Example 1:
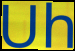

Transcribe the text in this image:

Uh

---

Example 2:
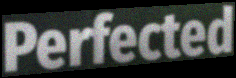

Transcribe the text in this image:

Perfected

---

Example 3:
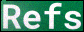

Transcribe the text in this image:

Refs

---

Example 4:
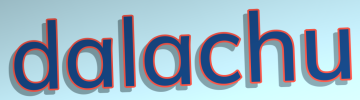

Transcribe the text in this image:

dalachu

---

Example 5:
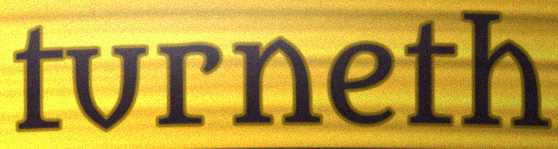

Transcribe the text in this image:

turneth